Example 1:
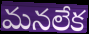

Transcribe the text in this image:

మనలేక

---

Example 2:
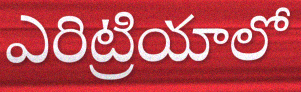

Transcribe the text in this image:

ఎరిట్రియాలో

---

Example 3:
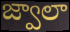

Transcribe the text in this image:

జ్వాలా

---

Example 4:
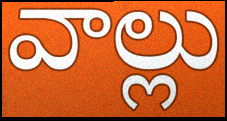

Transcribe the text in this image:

వాల్లు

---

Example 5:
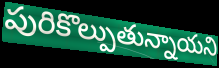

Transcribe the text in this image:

పురికొల్పుతున్నాయని